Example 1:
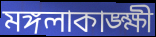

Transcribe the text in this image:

মঙ্গলাকাঙ্ক্ষী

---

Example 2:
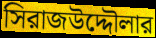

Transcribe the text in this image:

সিরাজউদ্দৌলার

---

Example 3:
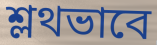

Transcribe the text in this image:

শ্লথভাবে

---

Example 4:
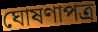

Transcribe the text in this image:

ঘোষণাপত্র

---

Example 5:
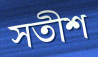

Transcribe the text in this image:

সতীশ